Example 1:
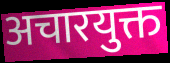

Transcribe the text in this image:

अचारयुक्त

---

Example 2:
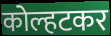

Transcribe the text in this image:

कोल्हटकर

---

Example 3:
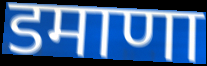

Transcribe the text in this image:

डमाणा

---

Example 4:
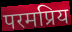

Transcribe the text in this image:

परमप्रिय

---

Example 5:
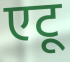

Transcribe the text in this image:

एटू